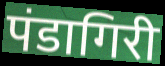
पंडागिरी